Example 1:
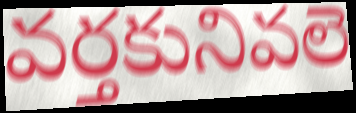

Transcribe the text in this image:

వర్తకునివలె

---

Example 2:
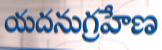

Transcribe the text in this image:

యదనుగ్రహేణ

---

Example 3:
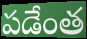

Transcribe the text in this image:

పడేంత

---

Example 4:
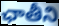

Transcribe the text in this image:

ఛాతీని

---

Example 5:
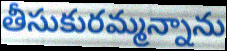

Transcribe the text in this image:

తీసుకురమ్మన్నాను